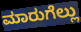
ಮಾರುಗೆಲ್ಲು